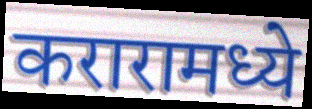
करारामध्ये